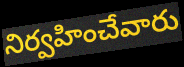
నిర్వహించేవారు